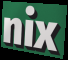
nix